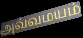
அவ்வமயம்